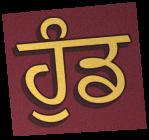
ਹੁੰਡ